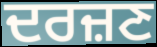
ਦਰਜ਼ਣ